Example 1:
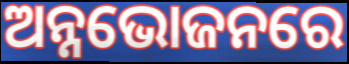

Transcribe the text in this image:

ଅନ୍ନଭୋଜନରେ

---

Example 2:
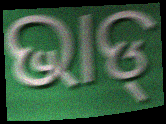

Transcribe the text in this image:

ଭାଡ୍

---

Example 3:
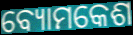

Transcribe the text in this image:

ବ୍ୟୋମକେଶ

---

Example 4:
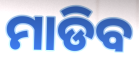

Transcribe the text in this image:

ମାଡିବ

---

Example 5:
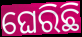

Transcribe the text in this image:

ଘେରିଛି